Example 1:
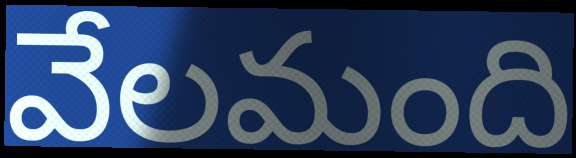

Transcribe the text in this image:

వేలమంది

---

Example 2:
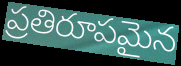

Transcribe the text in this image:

ప్రతిరూపమైన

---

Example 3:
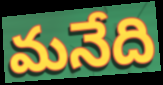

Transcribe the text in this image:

మనేది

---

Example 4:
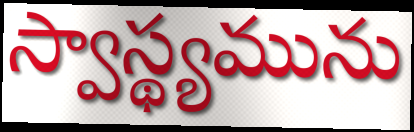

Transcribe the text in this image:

స్వాస్థ్యమును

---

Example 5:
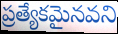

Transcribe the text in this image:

ప్రత్యేకమైనవని